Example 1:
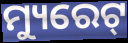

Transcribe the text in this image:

ମ୍ୟୁରେଟ୍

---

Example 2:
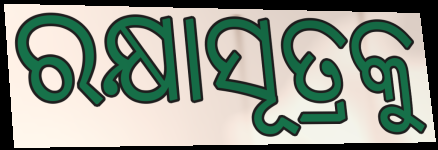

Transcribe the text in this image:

ରକ୍ଷାସୂତ୍ରକୁ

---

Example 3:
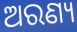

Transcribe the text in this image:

ଅରଣ୍ୟ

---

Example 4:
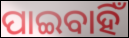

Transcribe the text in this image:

ପାଇବାହିଁ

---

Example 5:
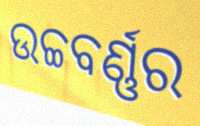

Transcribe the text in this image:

ଉଚ୍ଚବର୍ଣ୍ଣର